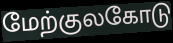
மேற்குலகோடு